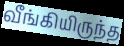
வீங்கியிருந்த